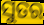
ସୁତର